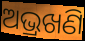
ଅଭ୍ରଖଣି